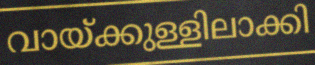
വായ്ക്കുള്ളിലാക്കി